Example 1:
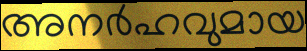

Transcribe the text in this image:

അനർഹവുമായ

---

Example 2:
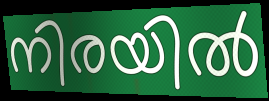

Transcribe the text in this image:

നിരയിൽ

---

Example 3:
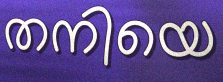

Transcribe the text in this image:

തനിയെ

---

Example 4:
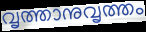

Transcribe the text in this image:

വൃത്താനുവൃത്തം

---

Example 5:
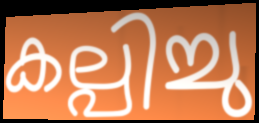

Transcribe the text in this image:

കല്പിച്ചു